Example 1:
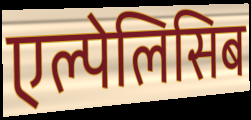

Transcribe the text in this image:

एल्पेलिसिब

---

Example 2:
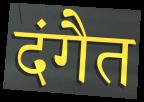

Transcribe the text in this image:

दंगैत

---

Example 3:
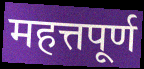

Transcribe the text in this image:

महत्तपूर्ण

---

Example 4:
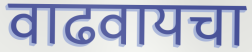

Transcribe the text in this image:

वाढवायचा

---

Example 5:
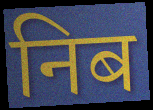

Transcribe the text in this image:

निब